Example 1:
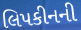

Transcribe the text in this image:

લિપકીનની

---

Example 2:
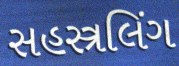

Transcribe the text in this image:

સહસ્ત્રલિંગ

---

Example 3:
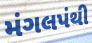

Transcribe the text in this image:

મંગલપંથી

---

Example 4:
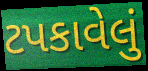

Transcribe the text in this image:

ટપકાવેલું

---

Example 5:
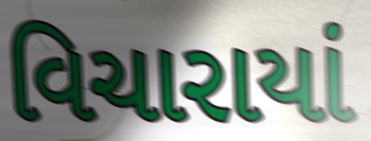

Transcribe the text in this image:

વિચારાયાં